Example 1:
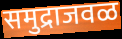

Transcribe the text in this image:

समुद्राजवळ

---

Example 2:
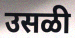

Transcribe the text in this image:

उसळी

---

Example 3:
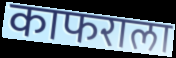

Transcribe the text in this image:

काफराला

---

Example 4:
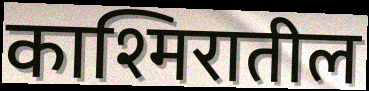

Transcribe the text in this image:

काश्मिरातील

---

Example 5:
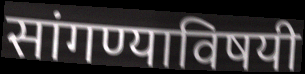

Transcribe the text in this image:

सांगण्याविषयी